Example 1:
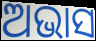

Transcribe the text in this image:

ଅଭାସ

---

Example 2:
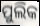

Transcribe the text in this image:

ପୁଲିକ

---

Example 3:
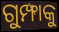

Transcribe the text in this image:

ଗୁମ୍ଫାକୁ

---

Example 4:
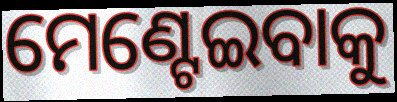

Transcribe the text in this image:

ମେଣ୍ଟେଇବାକୁ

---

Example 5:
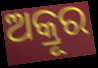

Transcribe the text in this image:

ଅକ୍ରୂର